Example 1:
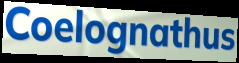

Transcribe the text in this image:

Coelognathus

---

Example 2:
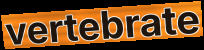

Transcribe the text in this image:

vertebrate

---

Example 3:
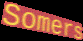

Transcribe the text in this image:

Somers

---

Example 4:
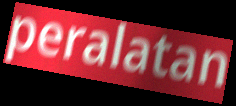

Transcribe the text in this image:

peralatan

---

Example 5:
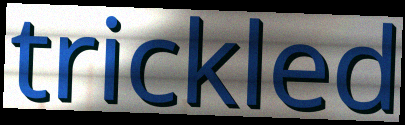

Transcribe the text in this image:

trickled